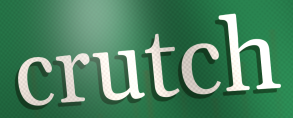
crutch